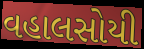
વહાલસોયી